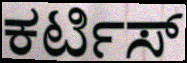
ಕರ್ಟಿಸ್